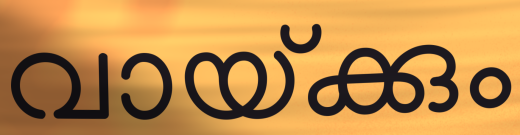
വായ്‌ക്കും